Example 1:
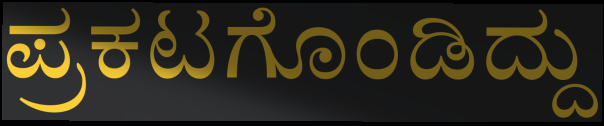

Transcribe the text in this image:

ಪ್ರಕಟಗೊಂಡಿದ್ದು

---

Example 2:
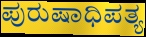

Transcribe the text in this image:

ಪುರುಷಾಧಿಪತ್ಯ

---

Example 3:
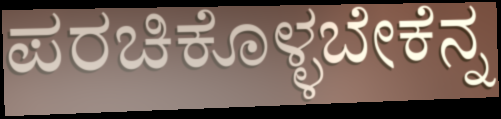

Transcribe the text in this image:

ಪರಚಿಕೊಳ್ಳಬೇಕೆನ್ನ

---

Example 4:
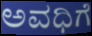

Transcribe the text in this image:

ಅವಧಿಗೆ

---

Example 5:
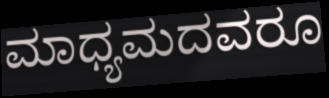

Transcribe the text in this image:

ಮಾಧ್ಯಮದವರೂ